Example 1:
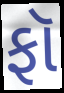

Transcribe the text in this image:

ફૉ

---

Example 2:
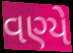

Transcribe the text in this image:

વણ્યે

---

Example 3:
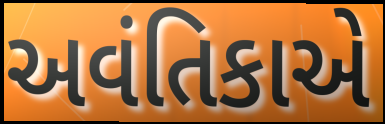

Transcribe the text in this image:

અવંતિકાએ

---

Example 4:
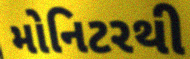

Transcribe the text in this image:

મોનિટરથી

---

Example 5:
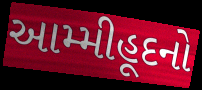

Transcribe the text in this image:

આમ્મીહૂદનો